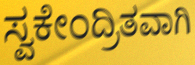
ಸ್ವಕೇಂದ್ರಿತವಾಗಿ